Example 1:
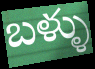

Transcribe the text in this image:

బళ్ళు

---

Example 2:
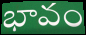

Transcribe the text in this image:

భావం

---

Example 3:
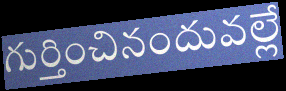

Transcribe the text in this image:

గుర్తించినందువల్లే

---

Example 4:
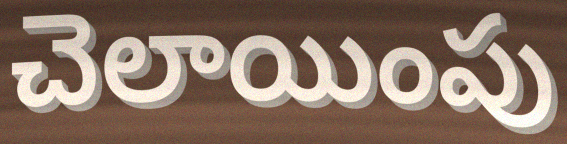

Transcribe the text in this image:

చెలాయింపు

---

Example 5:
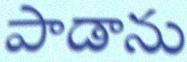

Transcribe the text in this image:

పాడాను